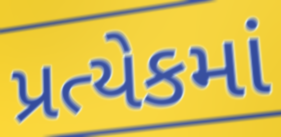
પ્રત્યેકમાં